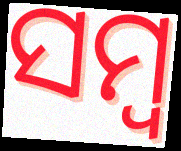
ସମ୍ବ